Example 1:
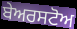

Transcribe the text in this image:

ਬੇਅਰਸਟੋਅ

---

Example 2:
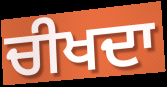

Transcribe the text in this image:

ਚੀਖਦਾ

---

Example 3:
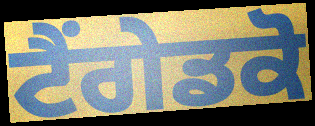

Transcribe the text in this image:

ਟੈਂਗੇਡਕੋ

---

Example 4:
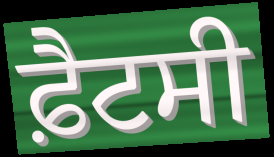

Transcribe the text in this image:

ਫ਼ੈਟਸੀ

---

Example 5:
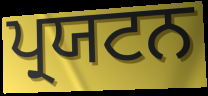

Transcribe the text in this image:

ਪ੍ਰਯਟਨ